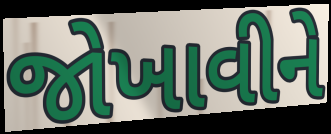
જોખાવીને